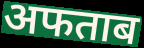
अफताब